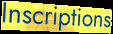
Inscriptions